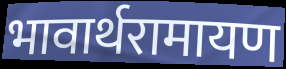
भावार्थरामायण